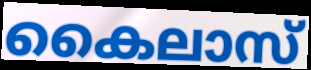
കൈലാസ്